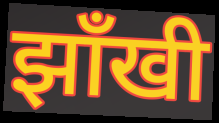
झाँखी